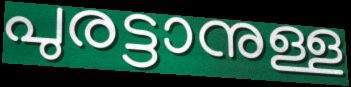
പുരട്ടാനുള്ള